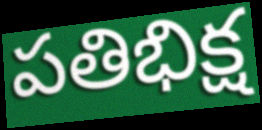
పతిభిక్ష